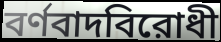
বর্ণবাদবিরোধী